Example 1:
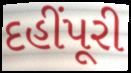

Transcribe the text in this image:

દહીંપૂરી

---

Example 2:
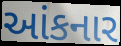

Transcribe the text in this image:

આંકનાર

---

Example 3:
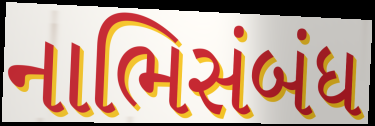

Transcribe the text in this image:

નાભિસંબંધ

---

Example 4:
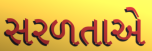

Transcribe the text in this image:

સરળતાએ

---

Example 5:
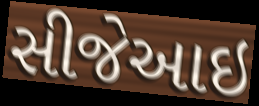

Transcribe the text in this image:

સીજેઆઇ